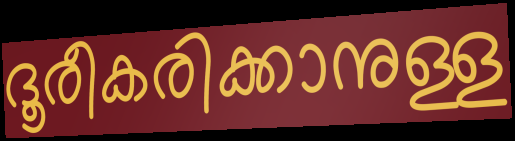
ദൂരീകരിക്കാനുള്ള